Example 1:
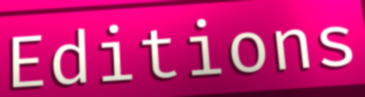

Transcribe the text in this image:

Editions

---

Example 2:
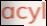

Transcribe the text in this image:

acyl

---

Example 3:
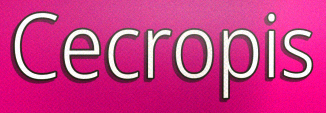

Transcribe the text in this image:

Cecropis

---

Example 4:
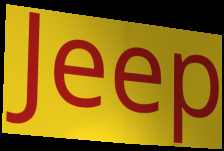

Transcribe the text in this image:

Jeep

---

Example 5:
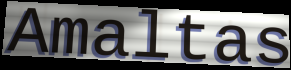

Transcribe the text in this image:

Amaltas